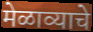
मेळाव्याचे